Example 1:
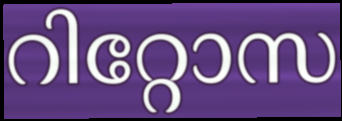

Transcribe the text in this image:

റിറ്റോസ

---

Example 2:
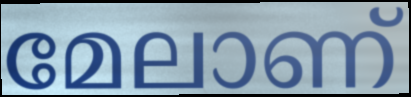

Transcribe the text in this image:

മേലാണ്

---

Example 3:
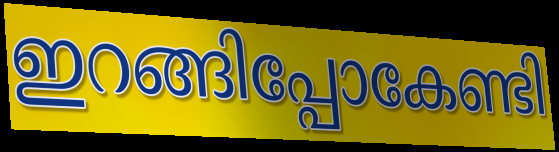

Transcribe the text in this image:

ഇറങ്ങിപ്പോകേണ്ടി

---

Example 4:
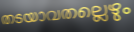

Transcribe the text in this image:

തടയാവതല്ലെഴും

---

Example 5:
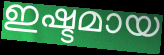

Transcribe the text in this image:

ഇഷ്ടമായ